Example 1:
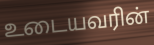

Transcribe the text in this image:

உடையவரின்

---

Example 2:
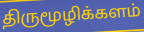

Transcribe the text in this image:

திருமூழிக்களம்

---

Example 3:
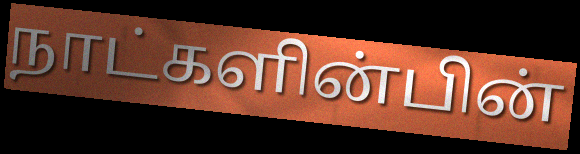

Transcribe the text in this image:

நாட்களின்பின்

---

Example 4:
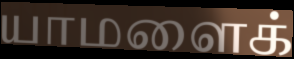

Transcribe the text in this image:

யாமளைக்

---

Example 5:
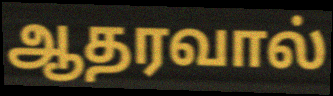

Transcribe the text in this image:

ஆதரவால்